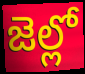
జెల్లో